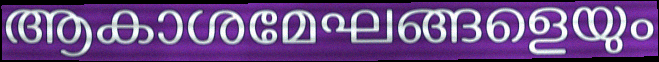
ആകാശമേഘങ്ങളെയും